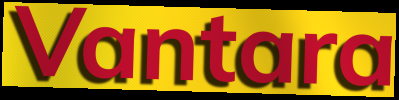
Vantara